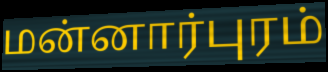
மன்னார்புரம்